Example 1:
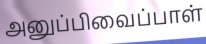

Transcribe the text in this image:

அனுப்பிவைப்பாள்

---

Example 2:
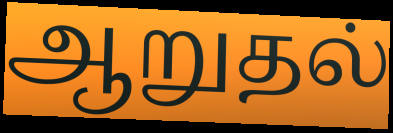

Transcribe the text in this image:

ஆறுதல்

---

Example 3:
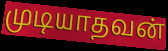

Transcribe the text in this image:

முடியாதவன்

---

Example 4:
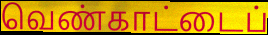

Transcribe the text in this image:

வெண்காட்டைப்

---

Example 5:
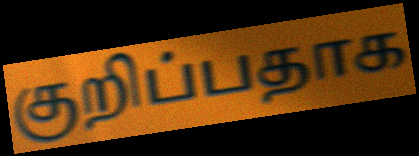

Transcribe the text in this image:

குறிப்பதாக